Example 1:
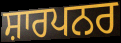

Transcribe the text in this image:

ਸ਼ਾਰਪਨਰ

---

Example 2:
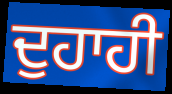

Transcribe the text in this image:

ਦੁਹਾਹੀ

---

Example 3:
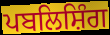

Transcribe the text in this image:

ਪਬਲਿਸ਼ਿੰਗ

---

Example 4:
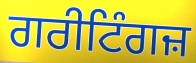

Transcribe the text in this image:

ਗਰੀਟਿੰਗਜ਼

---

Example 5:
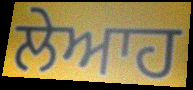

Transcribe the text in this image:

ਲੇਆਹ